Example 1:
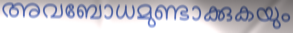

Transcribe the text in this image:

അവബോധമുണ്ടാക്കുകയും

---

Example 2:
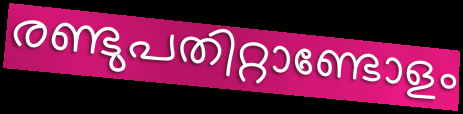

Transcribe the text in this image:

രണ്ടുപതിറ്റാണ്ടോളം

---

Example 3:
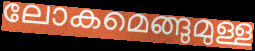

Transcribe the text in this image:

ലോകമെങ്ങുമുള്ള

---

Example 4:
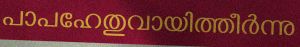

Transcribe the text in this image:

പാപഹേതുവായിത്തീർന്നു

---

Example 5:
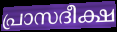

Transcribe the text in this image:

പ്രാസദീക്ഷ